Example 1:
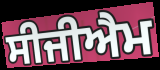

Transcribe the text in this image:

ਸੀਜੀਐਮ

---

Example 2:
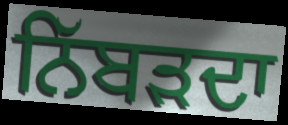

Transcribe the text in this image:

ਨਿੱਬੜਦਾ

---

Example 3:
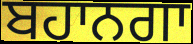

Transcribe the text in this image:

ਬਹਾਨਗਾ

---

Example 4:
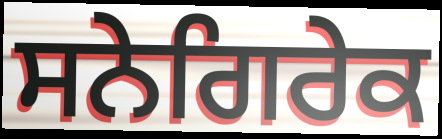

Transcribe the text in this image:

ਸਨੇਗਿਰੇਕ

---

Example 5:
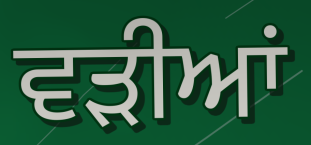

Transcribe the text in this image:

ਵੜੀਆਂ